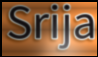
Srija